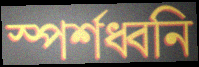
স্পৰ্শধ্বনি